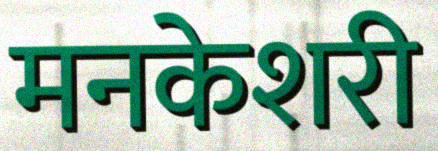
मनकेशरी